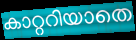
കാറ്ററിയാതെ